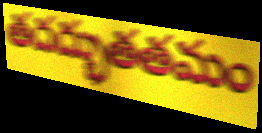
తదద్భుతతమం